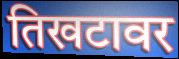
तिखटावर